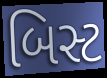
બિસ્ટ